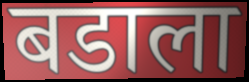
बडाला